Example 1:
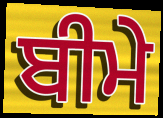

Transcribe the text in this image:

ਬੀਮੇ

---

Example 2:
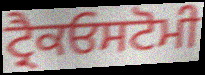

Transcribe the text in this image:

ਟ੍ਰੈਕਓਸਟੋਮੀ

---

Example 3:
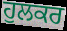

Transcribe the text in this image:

ਹੁਲਕਰ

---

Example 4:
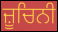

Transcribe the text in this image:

ਜ਼ੂਚਿਨੀ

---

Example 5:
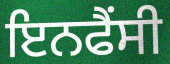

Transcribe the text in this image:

ਇਨਫੈਂਸੀ